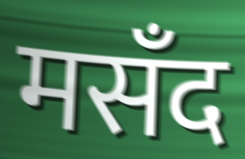
मसँद